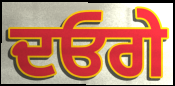
ਦਓਗੇ